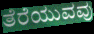
ತೆರೆಯುವವು